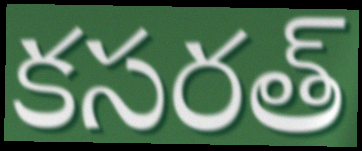
కసరత్